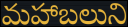
మహాబలుని